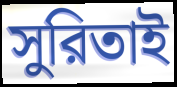
সুরিতাই